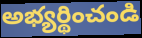
అభ్యర్థించండి